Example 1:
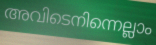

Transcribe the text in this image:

അവിടെനിന്നെല്ലാം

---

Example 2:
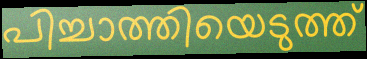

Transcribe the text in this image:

പിച്ചാത്തിയെടുത്ത്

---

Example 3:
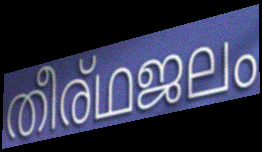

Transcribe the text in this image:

തീര്ഥജലം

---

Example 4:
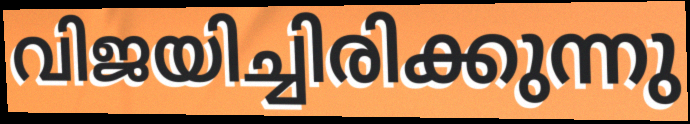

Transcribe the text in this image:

വിജയിച്ചിരിക്കുന്നു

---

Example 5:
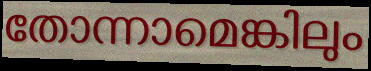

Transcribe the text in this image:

തോന്നാമെങ്കിലും